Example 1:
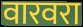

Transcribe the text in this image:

वारवरा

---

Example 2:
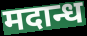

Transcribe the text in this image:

मदान्ध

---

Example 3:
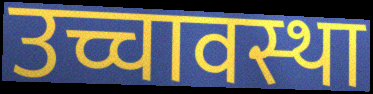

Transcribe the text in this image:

उच्चावस्था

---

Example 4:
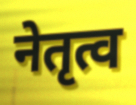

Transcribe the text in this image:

नेतृत्व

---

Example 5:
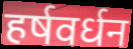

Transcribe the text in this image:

हर्षवर्धन